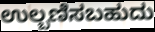
ಉಲ್ಬಣಿಸಬಹುದು